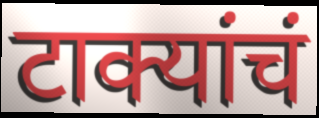
टाक्यांचं